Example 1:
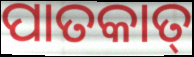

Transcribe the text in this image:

ପାତକାତ୍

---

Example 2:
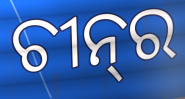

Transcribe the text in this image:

ଚୀନ୍‌ର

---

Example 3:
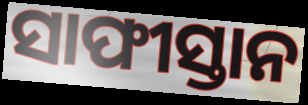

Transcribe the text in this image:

ସାଫୀସ୍ତାନ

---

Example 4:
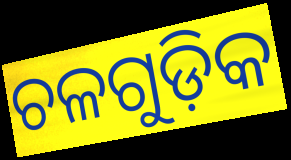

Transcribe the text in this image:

ଚଳଗୁଡ଼ିକ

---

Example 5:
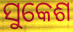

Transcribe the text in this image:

ସୁକେଶ